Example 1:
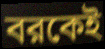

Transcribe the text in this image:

বরকেই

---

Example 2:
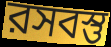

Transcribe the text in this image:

রসবস্তু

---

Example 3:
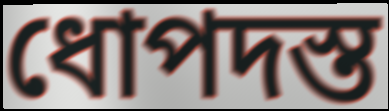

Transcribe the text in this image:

ধোপদস্ত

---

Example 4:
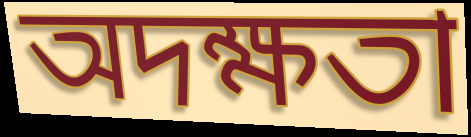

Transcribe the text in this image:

অদক্ষতা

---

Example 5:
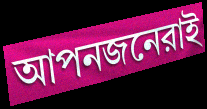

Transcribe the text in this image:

আপনজনেরাই